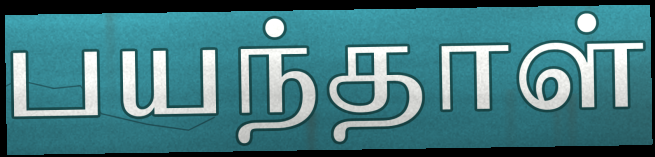
பயந்தாள்